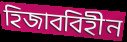
হিজাববিহীন